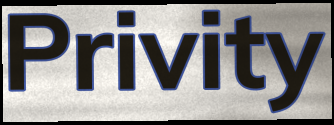
Privity